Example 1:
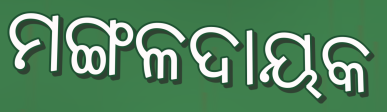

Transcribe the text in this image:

ମଙ୍ଗଳଦାୟକ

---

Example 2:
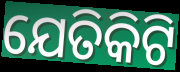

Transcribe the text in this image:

ଯେତିକିଟି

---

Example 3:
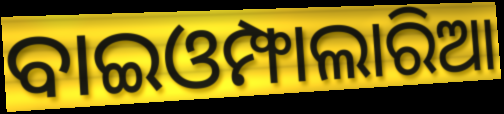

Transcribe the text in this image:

ବାଇଓମ୍ଫାଲାରିଆ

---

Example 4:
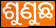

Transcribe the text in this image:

ଶୁଣୁଛ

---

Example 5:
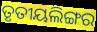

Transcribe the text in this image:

ତୃତୀୟଲିଙ୍ଗର